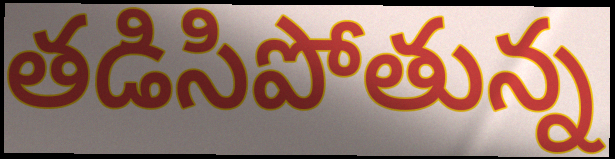
తడిసిపోతున్న